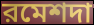
রমেশদা